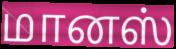
மானஸ்